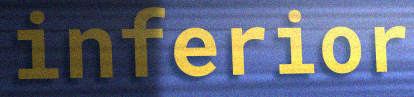
inferior